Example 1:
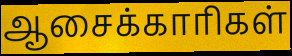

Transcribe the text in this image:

ஆசைக்காரிகள்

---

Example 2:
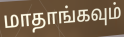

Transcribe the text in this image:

மாதாங்கவும்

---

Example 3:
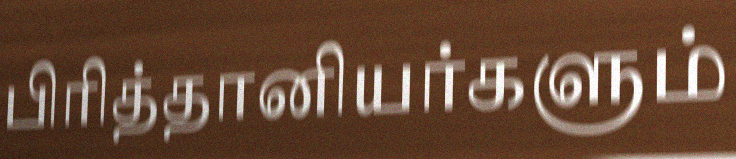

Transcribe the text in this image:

பிரித்தானியர்களும்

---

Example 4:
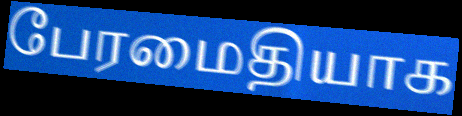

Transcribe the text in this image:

பேரமைதியாக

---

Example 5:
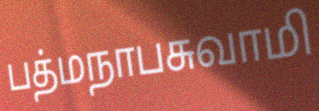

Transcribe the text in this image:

பத்மநாபசுவாமி